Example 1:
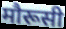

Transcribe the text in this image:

मौरूसी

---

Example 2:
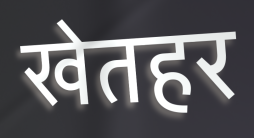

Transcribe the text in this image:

खेतहर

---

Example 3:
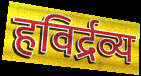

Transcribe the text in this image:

हविर्द्रव्य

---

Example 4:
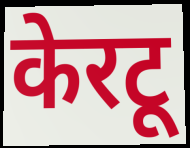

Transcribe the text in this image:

केरटू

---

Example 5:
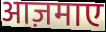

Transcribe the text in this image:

आज़माए